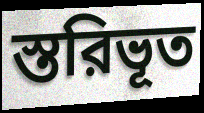
স্তরিভূত